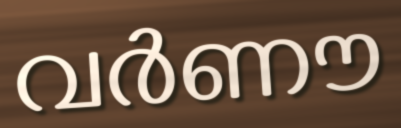
വർണൗ